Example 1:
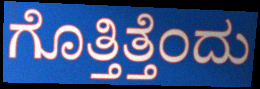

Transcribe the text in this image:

ಗೊತ್ತಿತ್ತೆಂದು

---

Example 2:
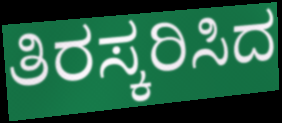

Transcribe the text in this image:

ತಿರಸ್ಕರಿಸಿದ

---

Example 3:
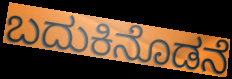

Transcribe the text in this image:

ಬದುಕಿನೊಡನೆ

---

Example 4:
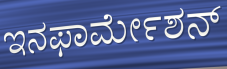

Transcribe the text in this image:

ಇನಫಾರ್ಮೇಶನ್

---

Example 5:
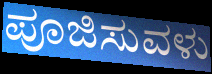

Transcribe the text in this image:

ಪೂಜಿಸುವಳು